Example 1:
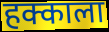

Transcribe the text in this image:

हक्काला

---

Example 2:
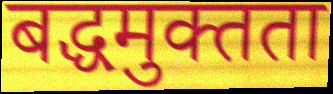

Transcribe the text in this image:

बद्धमुक्तता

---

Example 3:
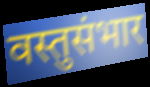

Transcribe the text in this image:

वस्तुसंभार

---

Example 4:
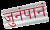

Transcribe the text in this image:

जुनंपानं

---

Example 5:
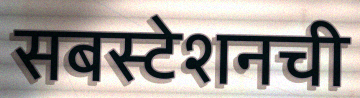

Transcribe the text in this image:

सबस्टेशनची